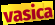
vasica